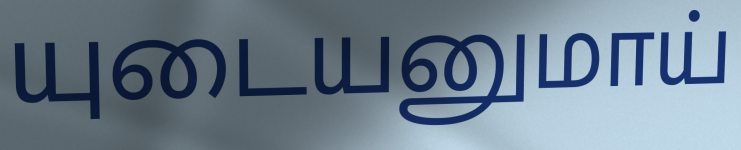
யுடையனுமாய்